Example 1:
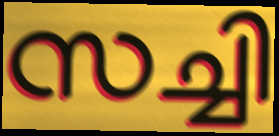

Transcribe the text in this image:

സച്ചി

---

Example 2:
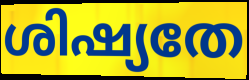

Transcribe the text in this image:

ശിഷ്യതേ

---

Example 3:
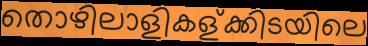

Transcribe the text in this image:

തൊഴിലാളികള്ക്കിടയിലെ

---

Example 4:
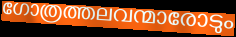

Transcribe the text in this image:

ഗോത്രത്തലവന്മാരോടും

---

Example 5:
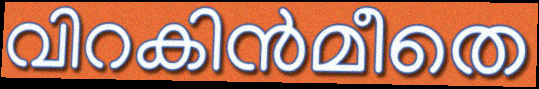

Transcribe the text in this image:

വിറകിൻമീതെ